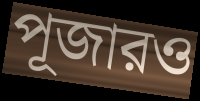
পূজারও